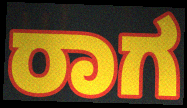
ರಾಗ